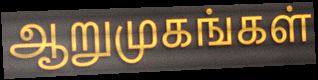
ஆறுமுகங்கள்